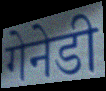
गेनेडी